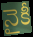
నైకీ